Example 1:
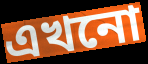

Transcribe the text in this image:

এখনো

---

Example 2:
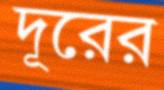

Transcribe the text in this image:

দূরের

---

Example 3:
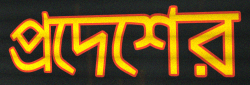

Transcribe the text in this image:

প্রদেশের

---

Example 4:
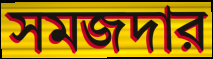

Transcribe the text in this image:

সমজদার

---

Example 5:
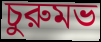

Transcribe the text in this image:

চুরুমভ